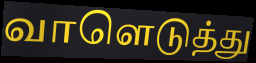
வாளெடுத்து